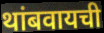
थांबवायची